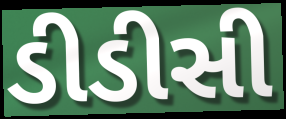
ડીડીસી